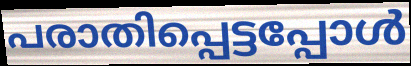
പരാതിപ്പെട്ടപ്പോൾ